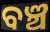
ବଞ୍ଚ